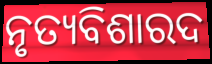
ନୃତ୍ୟବିଶାରଦ